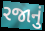
રજાનું